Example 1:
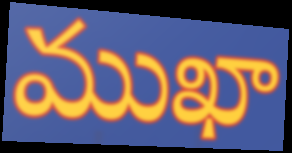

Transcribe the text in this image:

ముఖా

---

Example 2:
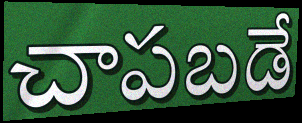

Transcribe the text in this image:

చాపబడే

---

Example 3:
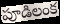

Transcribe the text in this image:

పూడిలంక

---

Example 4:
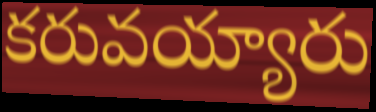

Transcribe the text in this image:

కరువయ్యారు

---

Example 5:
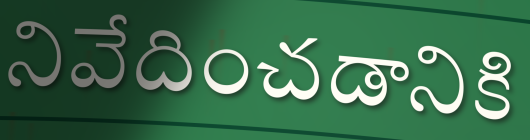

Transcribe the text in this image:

నివేదించడానికి